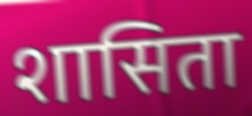
शासिता